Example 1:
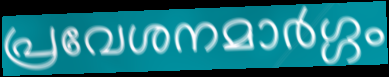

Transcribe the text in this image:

പ്രവേശനമാർഗ്ഗം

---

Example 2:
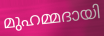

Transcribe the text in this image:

മുഹമ്മദായി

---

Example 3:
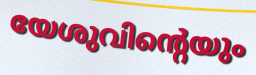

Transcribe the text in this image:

യേശുവിന്റെയും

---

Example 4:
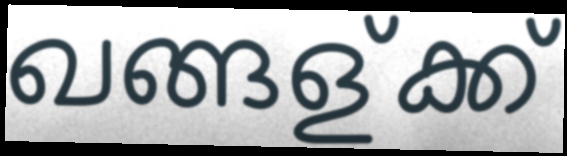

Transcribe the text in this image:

ഖങ്ങള്ക്ക്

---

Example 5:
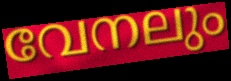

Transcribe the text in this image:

വേനലും